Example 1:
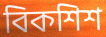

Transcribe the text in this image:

বিকশিশ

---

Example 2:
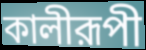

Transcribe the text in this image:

কালীরূপী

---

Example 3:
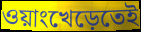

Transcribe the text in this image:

ওয়াংখেড়েতেই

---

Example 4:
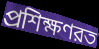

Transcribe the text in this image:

প্রশিক্ষণরত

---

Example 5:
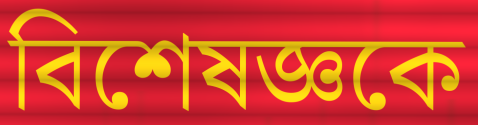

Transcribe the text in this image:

বিশেষজ্ঞকে